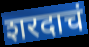
शरदाचं